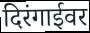
दिरंगाईवर